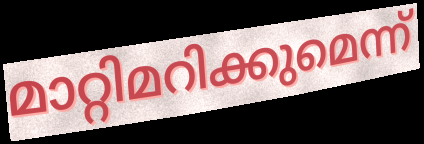
മാറ്റിമറിക്കുമെന്ന്